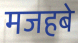
मजहबे